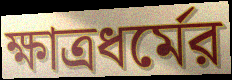
ক্ষাত্রধর্মের